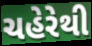
ચહેરેથી